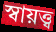
স্বায়ত্ত্ব